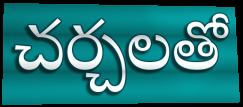
చర్చలతో